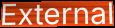
External